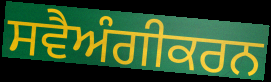
ਸਵੈਅੰਗੀਕਰਨ